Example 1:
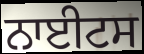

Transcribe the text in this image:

ਨਾਈਟਸ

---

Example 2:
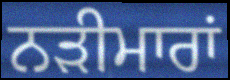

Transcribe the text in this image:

ਨੜੀਮਾਰਾਂ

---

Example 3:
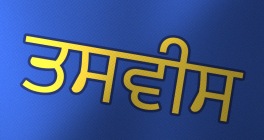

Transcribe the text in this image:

ਤਸਵੀਸ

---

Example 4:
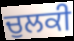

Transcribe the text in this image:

ਚੁਲਕੀ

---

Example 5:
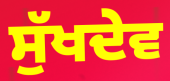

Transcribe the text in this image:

ਸੁੱਖਦੇਵ